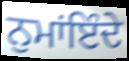
ਨੁਮਾਂਇੰਦੇ